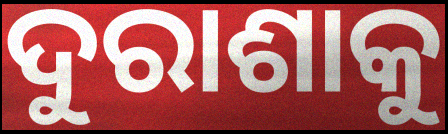
ଦୁରାଶାକୁ